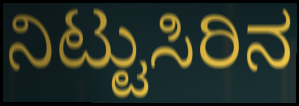
ನಿಟ್ಟುಸಿರಿನ